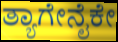
ತ್ಯಾಗೇನೈಕೇ